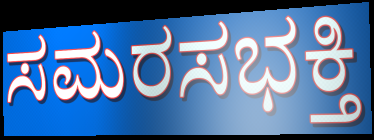
ಸಮರಸಭಕ್ತಿ